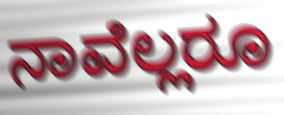
ನಾವೆಲ್ಲರೂ